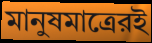
মানুষমাত্রেরই